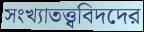
সংখ্যাতত্ত্ববিদদের